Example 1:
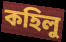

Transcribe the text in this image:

কহিলু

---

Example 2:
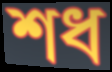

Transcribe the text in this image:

শধ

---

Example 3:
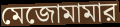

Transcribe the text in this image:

মেজোমামার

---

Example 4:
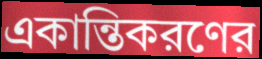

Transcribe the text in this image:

একান্তিকরণের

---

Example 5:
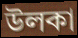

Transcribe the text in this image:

উলকা